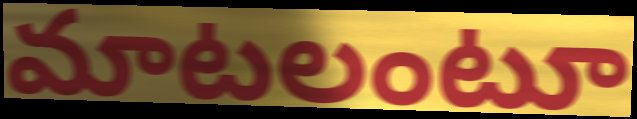
మాటలంటూ